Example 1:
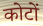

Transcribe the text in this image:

कोटों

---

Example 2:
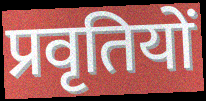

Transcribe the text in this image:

प्रवृतियों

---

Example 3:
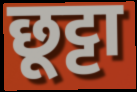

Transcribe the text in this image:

छूट्टा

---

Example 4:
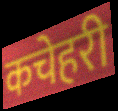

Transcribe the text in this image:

कचेहरी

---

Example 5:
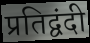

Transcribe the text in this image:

प्रतिद्वंदी